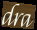
dra